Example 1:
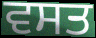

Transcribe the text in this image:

ਵਸਤ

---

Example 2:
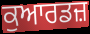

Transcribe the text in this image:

ਕੁਆਰਡਜ਼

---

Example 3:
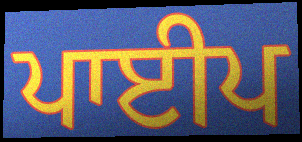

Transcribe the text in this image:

ਪਾਈਪ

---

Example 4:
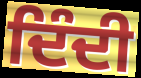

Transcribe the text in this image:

ਦਿੰਦੀ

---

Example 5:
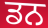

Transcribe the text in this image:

ਡਨ